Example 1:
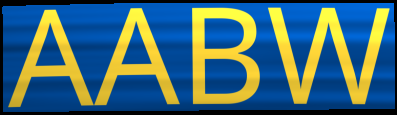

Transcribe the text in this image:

AABW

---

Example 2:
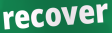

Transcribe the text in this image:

recover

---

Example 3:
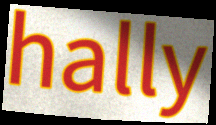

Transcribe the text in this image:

hally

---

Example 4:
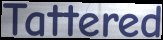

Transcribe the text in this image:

Tattered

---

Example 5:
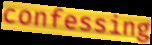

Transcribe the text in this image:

confessing